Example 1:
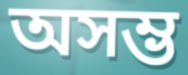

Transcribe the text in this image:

অসম্ভ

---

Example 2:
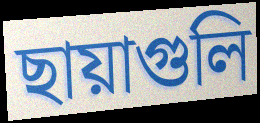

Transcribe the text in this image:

ছায়াগুলি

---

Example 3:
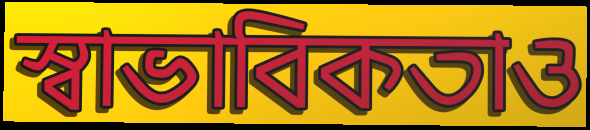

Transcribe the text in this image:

স্বাভাবিকতাও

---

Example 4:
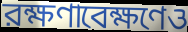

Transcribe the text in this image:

রক্ষণাবেক্ষণেও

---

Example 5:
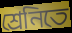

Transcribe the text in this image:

শ্রেনিতে